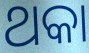
ଥକା